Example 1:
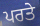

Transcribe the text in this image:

ਪਰਤੇ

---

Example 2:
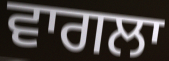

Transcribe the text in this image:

ਵਾਗਲਾ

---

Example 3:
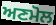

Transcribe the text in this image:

ਅਣਮੋਲ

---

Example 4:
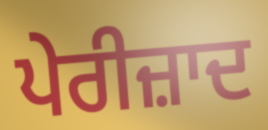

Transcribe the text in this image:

ਪੇਰੀਜ਼ਾਦ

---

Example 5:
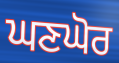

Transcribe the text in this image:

ਘਣਘੋਰ